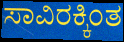
ಸಾವಿರಕ್ಕಿಂತ